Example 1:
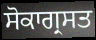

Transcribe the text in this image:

ਸੋਕਾਗ੍ਰਸਤ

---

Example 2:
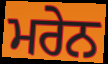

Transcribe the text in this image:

ਮਰੇਨ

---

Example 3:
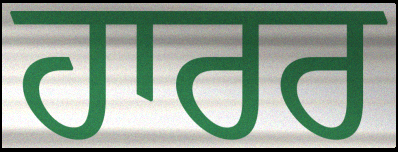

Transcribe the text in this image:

ਹਾਰਰ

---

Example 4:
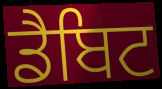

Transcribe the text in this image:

ਡੈਬਿਟ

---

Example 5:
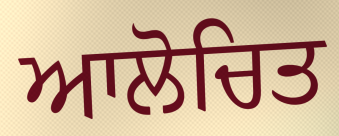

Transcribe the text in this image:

ਆਲੋਚਿਤ